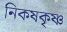
নিকষকৃষ্ণ